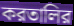
করতালির